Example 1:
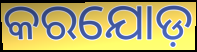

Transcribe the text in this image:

କରଯୋଡ଼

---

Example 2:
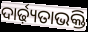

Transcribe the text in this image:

ଦାର୍ଢ଼୍ୟତାଭକ୍ତି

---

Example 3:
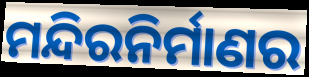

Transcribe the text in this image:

ମନ୍ଦିରନିର୍ମାଣର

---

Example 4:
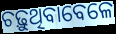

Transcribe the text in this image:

ଚଢ଼ୁଥିବାବେଳେ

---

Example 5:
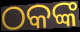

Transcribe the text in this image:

ଠକଙ୍କ